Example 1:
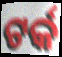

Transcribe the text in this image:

ଟର୍କ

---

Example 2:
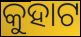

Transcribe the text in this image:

କୁହାଟ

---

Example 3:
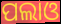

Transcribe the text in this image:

ପଲାଓ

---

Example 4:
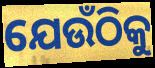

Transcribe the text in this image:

ଯେଉଁଠିକୁ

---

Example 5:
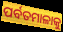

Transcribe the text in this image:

ପର୍ବତମାଳାକୁ